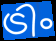
ട്രിം